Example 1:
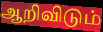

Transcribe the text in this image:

ஆறிவிடும்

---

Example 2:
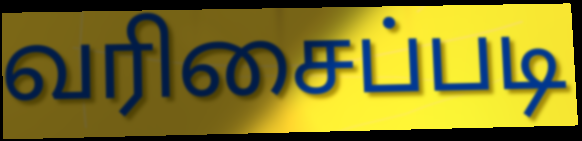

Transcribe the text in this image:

வரிசைப்படி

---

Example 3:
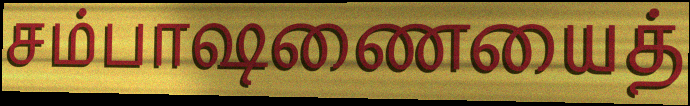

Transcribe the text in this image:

சம்பாஷணையைத்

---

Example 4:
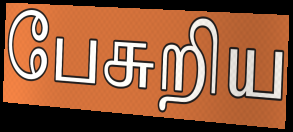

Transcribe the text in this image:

பேசுறிய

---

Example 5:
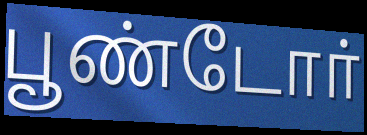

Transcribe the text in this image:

பூண்டோர்